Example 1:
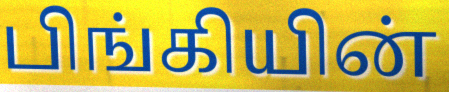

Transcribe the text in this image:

பிங்கியின்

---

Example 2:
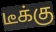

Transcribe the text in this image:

டீக்கு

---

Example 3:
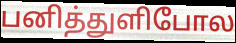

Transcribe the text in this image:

பனித்துளிபோல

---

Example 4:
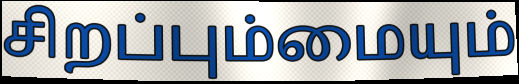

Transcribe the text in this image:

சிறப்பும்மையும்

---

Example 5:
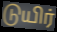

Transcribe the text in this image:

டுயிர்